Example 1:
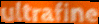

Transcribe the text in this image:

ultrafine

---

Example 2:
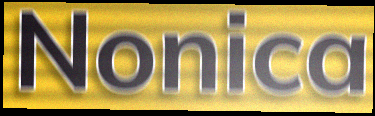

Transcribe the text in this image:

Nonica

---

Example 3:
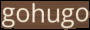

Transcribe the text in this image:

gohugo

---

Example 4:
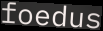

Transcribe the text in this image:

foedus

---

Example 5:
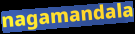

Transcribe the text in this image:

nagamandala